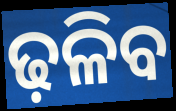
ଢ଼ଳିବ